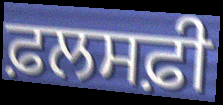
ਫ਼ਲਸਫ਼ੀ